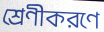
শ্রেণীকরণে